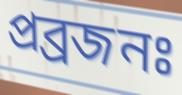
প্ৰব্ৰজনঃ